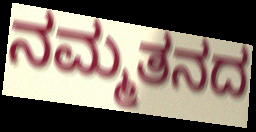
ನಮ್ಮತನದ